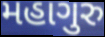
મહાગુરુ